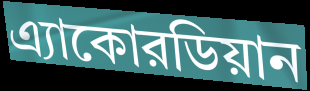
এ্যাকোরডিয়ান